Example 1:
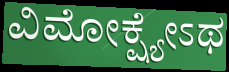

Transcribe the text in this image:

ವಿಮೋಕ್ಷ್ಯೇಽಥ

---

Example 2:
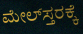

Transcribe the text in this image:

ಮೇಲ್‌ಸ್ತರಕ್ಕೆ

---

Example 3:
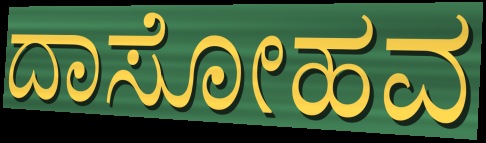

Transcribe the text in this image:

ದಾಸೋಹವ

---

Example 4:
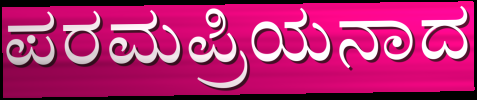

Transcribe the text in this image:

ಪರಮಪ್ರಿಯನಾದ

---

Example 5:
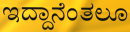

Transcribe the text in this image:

ಇದ್ದಾನೆಂತಲೂ